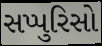
સપ્પુરિસો